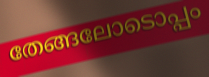
തേങ്ങലോടൊപ്പം